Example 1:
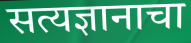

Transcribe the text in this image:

सत्यज्ञानाचा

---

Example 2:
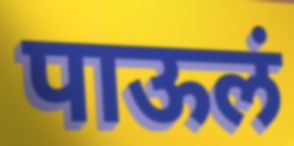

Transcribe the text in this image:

पाऊलं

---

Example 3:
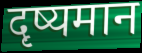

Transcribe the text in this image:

दृष्यमान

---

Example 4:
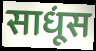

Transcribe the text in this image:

साधूंस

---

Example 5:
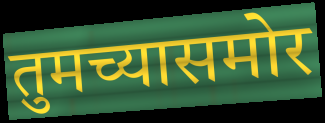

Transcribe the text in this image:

तुमच्यासमोर